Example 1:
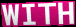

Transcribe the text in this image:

WITH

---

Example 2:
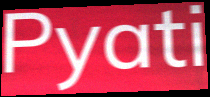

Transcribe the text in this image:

Pyati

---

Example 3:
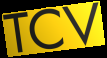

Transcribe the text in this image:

TCV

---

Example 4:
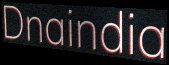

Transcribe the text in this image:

Dnaindia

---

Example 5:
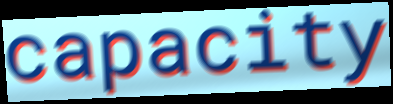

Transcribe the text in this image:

capacity